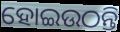
ହୋଇଉଠନ୍ତି